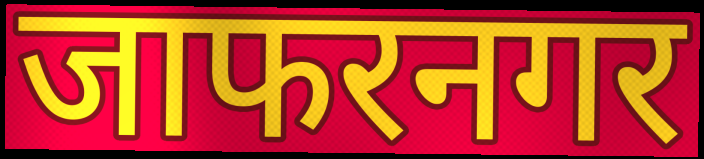
जाफरनगर